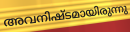
അവനിഷ്ടമായിരുന്നു